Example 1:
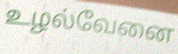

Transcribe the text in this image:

உழல்வேனை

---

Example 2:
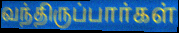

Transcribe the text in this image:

வந்திருப்பார்கள்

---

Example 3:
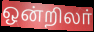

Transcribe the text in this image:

ஒன்றிலர்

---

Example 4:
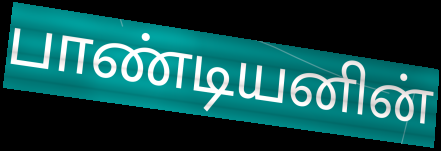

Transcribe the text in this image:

பாண்டியனின்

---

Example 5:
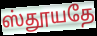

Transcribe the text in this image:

ஸ்தூயதே